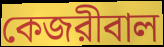
কেজরীবাল